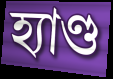
হ্যাণ্ড